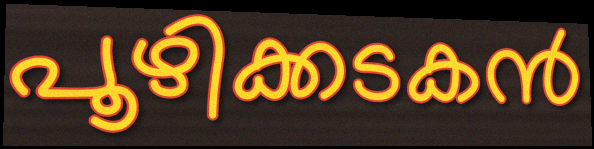
പൂഴിക്കടകൻ